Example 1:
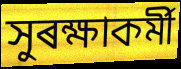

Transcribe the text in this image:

সুৰক্ষাকৰ্মী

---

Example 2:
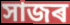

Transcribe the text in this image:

সাজৰ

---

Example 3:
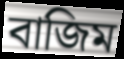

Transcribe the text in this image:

বাজিম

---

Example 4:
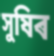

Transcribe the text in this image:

সুষিৰ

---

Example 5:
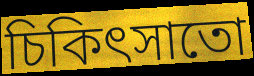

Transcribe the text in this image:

চিকিৎসাতো